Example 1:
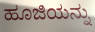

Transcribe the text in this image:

ಹೂಜಿಯನ್ನು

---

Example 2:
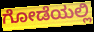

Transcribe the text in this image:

ಗೋಡೆಯಲ್ಲಿ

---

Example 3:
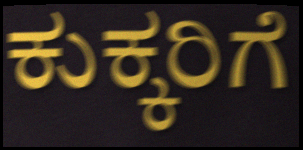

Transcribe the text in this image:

ಕುಕ್ಕರಿಗೆ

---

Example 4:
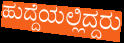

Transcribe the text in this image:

ಹುದ್ದೆಯಲ್ಲಿದ್ದರು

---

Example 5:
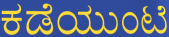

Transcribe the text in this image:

ಕಡೆಯುಂಟೆ